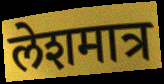
लेशमात्र